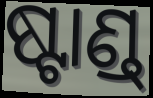
ଷ୍ଟାଣ୍ଡ୍